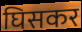
घिसकर